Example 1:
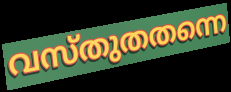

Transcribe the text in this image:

വസ്തുതതന്നെ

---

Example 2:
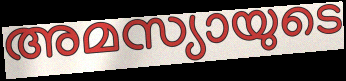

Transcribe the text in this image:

അമസ്യായുടെ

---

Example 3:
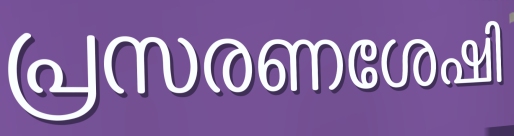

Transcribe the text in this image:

പ്രസരണശേഷി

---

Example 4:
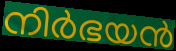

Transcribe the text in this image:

നിർഭയൻ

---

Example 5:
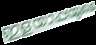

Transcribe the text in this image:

ഇളയാപ്പയുടെ